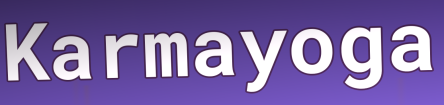
Karmayoga